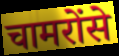
चामरोंसे